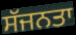
ਸੱਜਨਤਾ